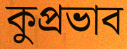
কুপ্রভাব